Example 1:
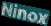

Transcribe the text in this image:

Ninox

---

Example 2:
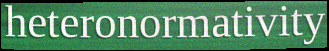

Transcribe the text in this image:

heteronormativity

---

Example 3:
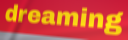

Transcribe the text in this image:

dreaming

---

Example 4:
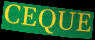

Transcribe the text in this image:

CEQUE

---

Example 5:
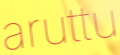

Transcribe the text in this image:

aruttu